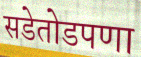
सडेतोडपणा